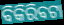
ବିକିରିବଟା